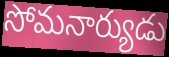
సోమనార్యుడు